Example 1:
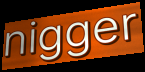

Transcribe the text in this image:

nigger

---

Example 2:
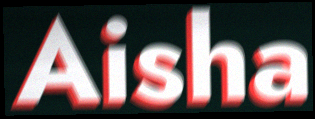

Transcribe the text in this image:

Aisha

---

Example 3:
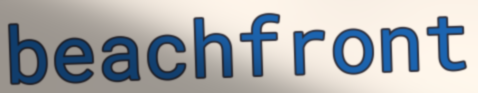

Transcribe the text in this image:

beachfront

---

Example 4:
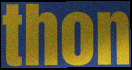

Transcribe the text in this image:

thon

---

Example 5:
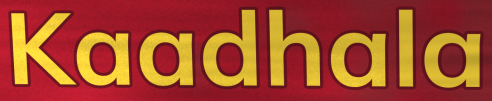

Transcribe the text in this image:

Kaadhala